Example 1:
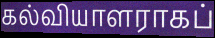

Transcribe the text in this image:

கல்வியாளராகப்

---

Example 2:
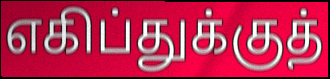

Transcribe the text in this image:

எகிப்துக்குத்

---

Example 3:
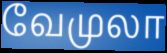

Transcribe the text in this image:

வேமுலா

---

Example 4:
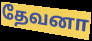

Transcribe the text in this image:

தேவனா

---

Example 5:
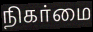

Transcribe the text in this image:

நிகர்மை